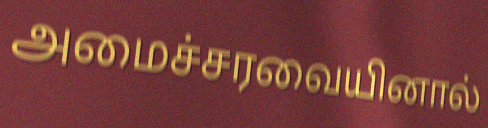
அமைச்சரவையினால்